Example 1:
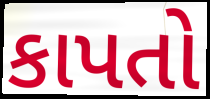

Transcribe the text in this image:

કાપતો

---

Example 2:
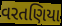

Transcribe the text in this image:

વરતણિયા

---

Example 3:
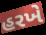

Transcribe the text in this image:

હરખે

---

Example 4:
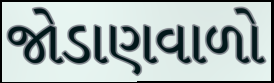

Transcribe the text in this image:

જોડાણવાળો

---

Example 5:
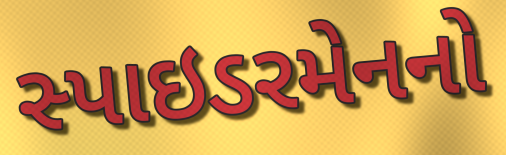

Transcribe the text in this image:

સ્પાઇડરમેનનો